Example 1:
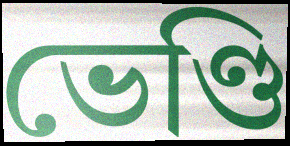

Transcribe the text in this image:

ভেণ্ডি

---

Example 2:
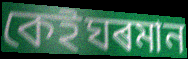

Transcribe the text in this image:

কেইঘৰমান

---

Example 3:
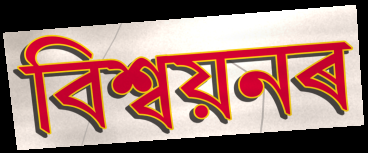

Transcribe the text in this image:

বিশ্বয়নৰ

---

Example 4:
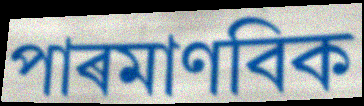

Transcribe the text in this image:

পাৰমাণবিক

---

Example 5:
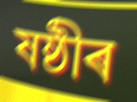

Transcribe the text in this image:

ষষ্ঠীৰ